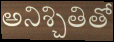
అనిశ్చితితో